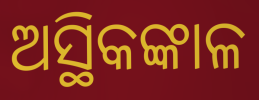
ଅସ୍ଥିକଙ୍କାଳ